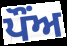
ਪੌਂਅ